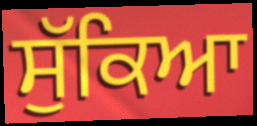
ਸੁੱਕਿਆ